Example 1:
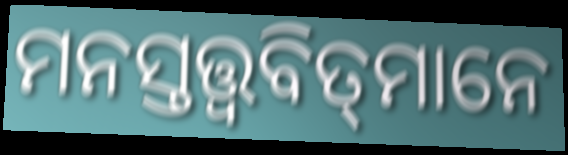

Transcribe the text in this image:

ମନସ୍ତତ୍ତ୍ୱବିତ୍‌ମାନେ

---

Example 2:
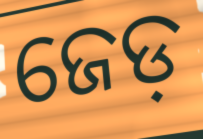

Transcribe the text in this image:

ଜେଡ଼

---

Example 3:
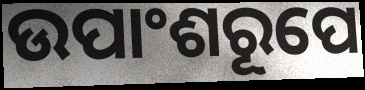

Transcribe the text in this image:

ଉପାଂଶରୂପେ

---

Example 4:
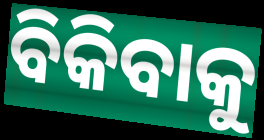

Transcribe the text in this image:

ବିକିବାକୁ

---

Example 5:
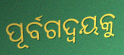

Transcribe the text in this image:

ପୂର୍ବଗଦ୍ଵୟକୁ